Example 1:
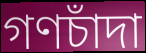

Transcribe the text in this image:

গণচাঁদা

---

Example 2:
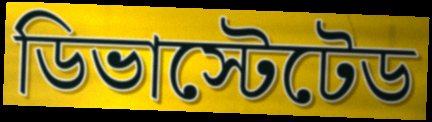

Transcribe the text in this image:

ডিভাস্টেটেড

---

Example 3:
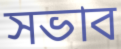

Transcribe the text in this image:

সভাব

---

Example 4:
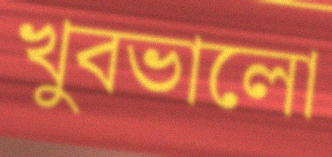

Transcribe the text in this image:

খুবভালো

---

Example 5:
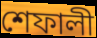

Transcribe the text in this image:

শেফালী